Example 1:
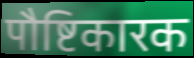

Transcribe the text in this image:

पौष्टिकारक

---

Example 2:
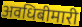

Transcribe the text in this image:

अवधिबीमारी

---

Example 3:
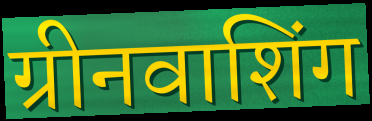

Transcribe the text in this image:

ग्रीनवाशिंग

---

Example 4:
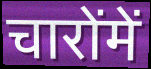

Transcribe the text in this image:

चारोंमें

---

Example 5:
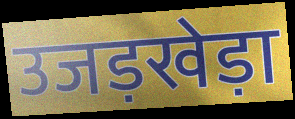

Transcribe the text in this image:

उजड़खेड़ा